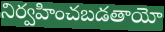
నిర్వహించబడతాయో